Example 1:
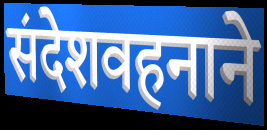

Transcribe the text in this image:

संदेशवहनाने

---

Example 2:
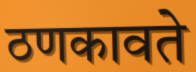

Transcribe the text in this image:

ठणकावते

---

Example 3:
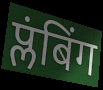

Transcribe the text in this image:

प्लंबिंग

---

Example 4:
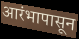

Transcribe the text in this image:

आरंभापासून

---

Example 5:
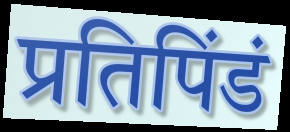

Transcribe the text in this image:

प्रतिपिंडं